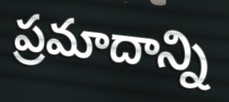
ప్రమాదాన్ని